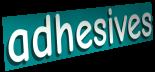
adhesives